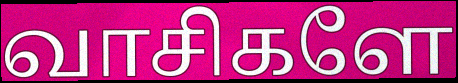
வாசிகளே